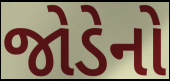
જોડેનો